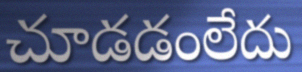
చూడడంలేదు